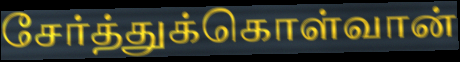
சேர்த்துக்கொள்வான்